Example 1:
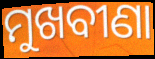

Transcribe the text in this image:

ମୁଖବୀଣା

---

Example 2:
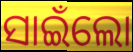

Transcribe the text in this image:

ସାଇଁଲୋ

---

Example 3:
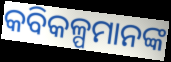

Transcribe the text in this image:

କବିକଳ୍ପମାନଙ୍କ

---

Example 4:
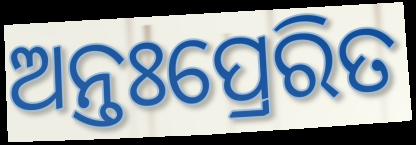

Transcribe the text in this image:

ଅନ୍ତଃପ୍ରେରିତ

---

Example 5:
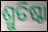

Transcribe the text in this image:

ଶ୍ରୁତିଷ୍ଠା